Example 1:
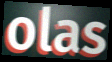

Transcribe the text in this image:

olas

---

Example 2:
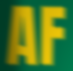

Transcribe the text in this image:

AF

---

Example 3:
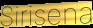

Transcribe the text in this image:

Sirisena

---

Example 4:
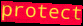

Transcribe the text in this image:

protect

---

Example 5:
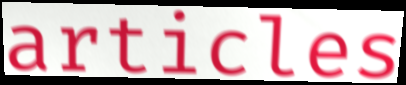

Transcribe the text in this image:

articles